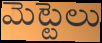
మెట్టెలు